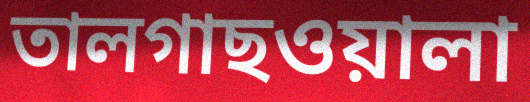
তালগাছওয়ালা